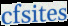
cfsites